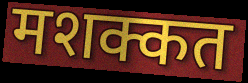
मशक्कत